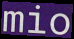
mio